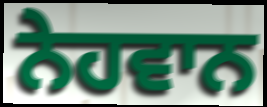
ਨੇਹਵਾਨ